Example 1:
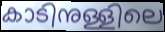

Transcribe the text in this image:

കാടിനുള്ളിലെ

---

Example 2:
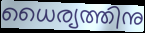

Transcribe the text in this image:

ധൈര്യത്തിനു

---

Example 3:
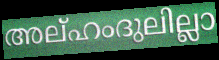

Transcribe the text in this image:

അല്ഹംദുലില്ലാ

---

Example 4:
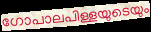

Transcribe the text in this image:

ഗോപാലപിള്ളയുടെയും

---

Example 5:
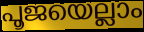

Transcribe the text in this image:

പൂജയെല്ലാം